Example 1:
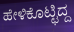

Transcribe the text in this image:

ಹೇಳಿಕೊಟ್ಟಿದ್ದ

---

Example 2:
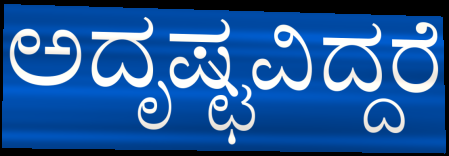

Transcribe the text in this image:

ಅದೃಷ್ಟವಿದ್ದರೆ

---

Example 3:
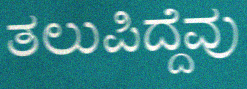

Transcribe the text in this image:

ತಲುಪಿದ್ದೆವು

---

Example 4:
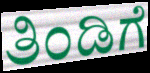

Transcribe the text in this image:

ತಿಂಡಿಗೆ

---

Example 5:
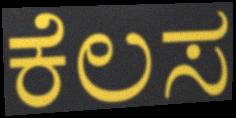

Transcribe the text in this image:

ಕೆಲಸ